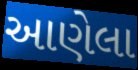
આણેલા